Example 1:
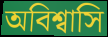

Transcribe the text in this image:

অবিশ্বাসি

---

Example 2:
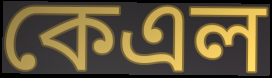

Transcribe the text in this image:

কেএল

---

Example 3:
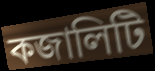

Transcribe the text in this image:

কজালিটি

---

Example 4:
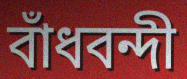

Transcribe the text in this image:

বাঁধবন্দী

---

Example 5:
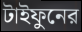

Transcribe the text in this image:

টাইফুনের